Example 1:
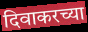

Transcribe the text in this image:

दिवाकरच्या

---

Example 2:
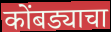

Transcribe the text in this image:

कोंबड्याचा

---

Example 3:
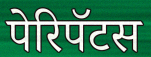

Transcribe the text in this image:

पेरिपॅटस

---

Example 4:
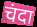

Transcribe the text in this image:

चंदा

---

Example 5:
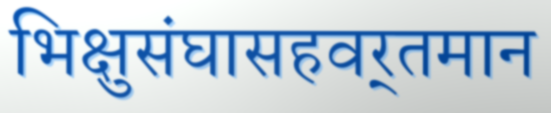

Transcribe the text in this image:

भिक्षुसंघासहवर्तमान